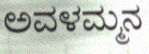
ಅವಳಮ್ಮನ